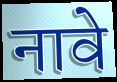
नावे